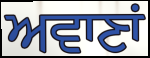
ਅਵਾਣਾਂ